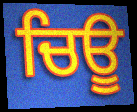
ਚਿਊ